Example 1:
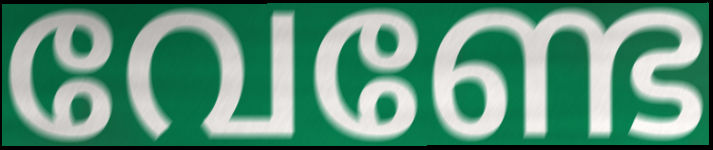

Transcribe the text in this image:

വേണ്ടേ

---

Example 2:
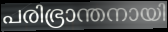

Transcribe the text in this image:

പരിഭ്രാന്തനായി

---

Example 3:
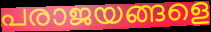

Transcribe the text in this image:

പരാജയങ്ങളെ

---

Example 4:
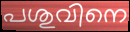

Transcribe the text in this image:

പശുവിനെ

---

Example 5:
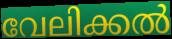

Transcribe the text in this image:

വേലിക്കൽ